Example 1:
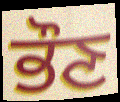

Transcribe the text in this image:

ਭੌਣ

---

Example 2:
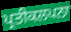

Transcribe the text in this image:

ਪ੍ਰਤੀਕਲਪਨਾ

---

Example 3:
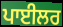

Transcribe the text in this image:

ਪਾਈਲਰ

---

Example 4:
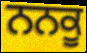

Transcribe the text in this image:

ਨਨਕੂ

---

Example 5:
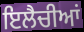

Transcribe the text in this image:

ਇਲੈਚੀਆਂ